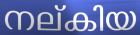
നല്‌കിയ